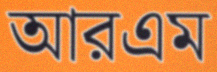
আরএম